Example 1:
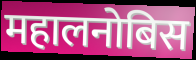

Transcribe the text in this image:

महालनोबिस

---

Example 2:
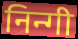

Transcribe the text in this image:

निन्गी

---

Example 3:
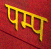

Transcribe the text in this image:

पम्प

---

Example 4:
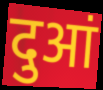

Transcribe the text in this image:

दुआं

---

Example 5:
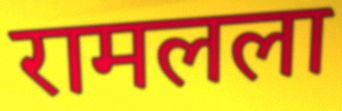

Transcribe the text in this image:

रामलला